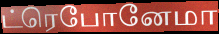
ட்ரெபோனேமா